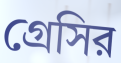
গ্রেসির